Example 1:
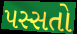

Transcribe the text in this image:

પસ્સતો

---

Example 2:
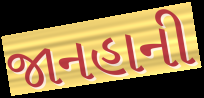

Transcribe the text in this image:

જાનહાની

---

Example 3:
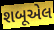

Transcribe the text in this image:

શબૂએલ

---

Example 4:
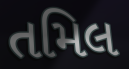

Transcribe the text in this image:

તમિલ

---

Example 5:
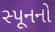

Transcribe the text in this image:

સ્પૂનનો